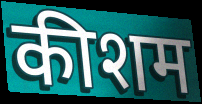
कीशम